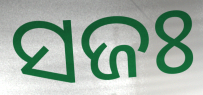
ସଜଃ